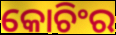
କୋଚିଂର